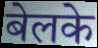
बेलके